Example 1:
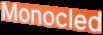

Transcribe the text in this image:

Monocled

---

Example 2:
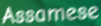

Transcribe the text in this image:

Assamese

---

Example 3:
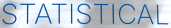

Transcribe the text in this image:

STATISTICAL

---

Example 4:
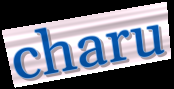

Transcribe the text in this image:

charu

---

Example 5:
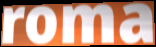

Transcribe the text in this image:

roma